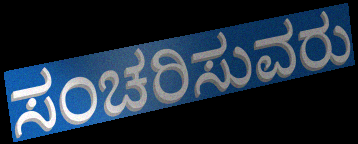
ಸಂಚರಿಸುವರು